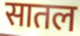
सातल